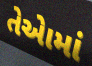
તેએામાં